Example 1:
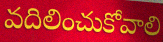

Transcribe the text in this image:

వదిలించుకోవాలి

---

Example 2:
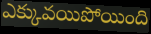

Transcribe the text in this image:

ఎక్కువయిపోయింది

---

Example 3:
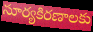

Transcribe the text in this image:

సూర్యకిరణాలకు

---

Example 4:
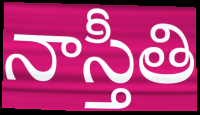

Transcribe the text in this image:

నాస్తీతి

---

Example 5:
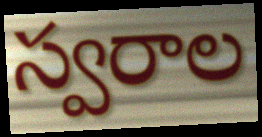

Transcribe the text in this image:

స్వరాల